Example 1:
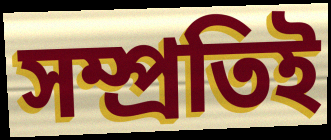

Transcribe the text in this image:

সম্প্রতিই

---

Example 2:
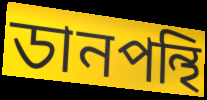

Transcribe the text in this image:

ডানপন্থি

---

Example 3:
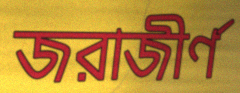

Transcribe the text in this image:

জরাজীর্ণ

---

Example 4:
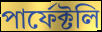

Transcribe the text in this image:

পার্ফেক্টলি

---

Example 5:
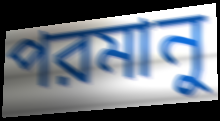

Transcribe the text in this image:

পরমানু